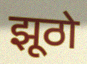
झूठो